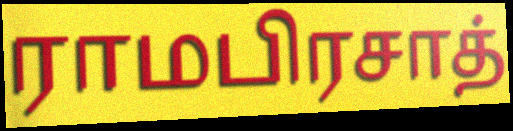
ராமபிரசாத்